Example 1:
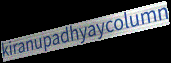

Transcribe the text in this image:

kiranupadhyaycolumn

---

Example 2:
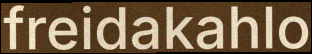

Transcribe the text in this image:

freidakahlo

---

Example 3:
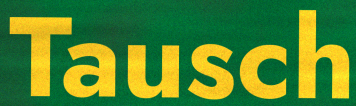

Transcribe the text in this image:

Tausch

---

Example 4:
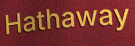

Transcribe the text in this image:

Hathaway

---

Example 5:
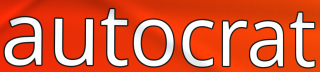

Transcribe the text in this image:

autocrat